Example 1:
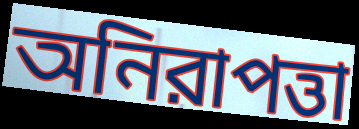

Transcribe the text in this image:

অনিরাপত্তা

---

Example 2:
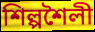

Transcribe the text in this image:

শিল্পশৈলী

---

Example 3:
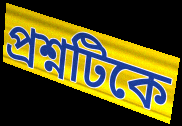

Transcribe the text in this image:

প্রশ্নটিকে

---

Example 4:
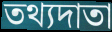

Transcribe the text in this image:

তথ্যদাতা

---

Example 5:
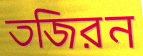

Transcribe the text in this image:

তজিরন